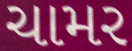
ચામર